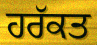
ਹਰੱਕਤ